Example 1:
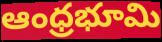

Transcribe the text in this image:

ఆంధ్రభూమి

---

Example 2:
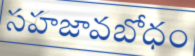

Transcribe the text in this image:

సహజావబోధం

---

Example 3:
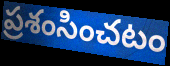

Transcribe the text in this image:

ప్రశంసించటం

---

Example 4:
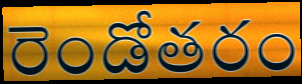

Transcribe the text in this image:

రెండోతరం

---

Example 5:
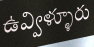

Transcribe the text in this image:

ఉవ్విళ్ళూరు